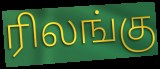
ரிலங்கு